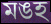
মঙহ